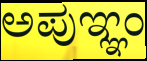
ಅಪುಞ್ಞಂ